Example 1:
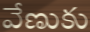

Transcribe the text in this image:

వేణుకు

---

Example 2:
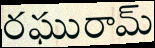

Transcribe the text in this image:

రఘురామ్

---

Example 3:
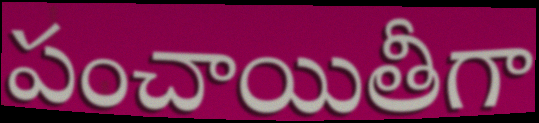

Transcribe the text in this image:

పంచాయితీగా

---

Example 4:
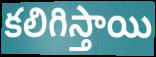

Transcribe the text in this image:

కలిగిస్తాయి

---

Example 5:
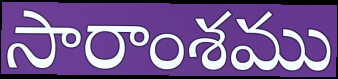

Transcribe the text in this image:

సారాంశము